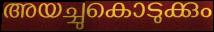
അയച്ചുകൊടുക്കും